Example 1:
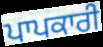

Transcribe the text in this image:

ਪਾਪਕਾਰੀ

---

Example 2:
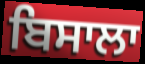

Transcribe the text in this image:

ਬਿਸਾਲਾ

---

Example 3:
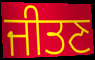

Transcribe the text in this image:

ਜੀਤਣ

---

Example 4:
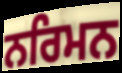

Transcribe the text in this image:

ਨਰਿਮਨ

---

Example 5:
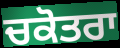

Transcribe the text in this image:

ਚਕੋਤਰਾ